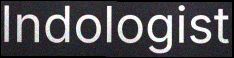
Indologist